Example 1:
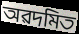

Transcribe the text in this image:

অৱদমিত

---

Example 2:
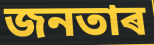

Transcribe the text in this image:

জনতাৰ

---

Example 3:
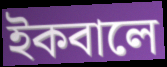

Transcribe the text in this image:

ইকবালে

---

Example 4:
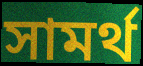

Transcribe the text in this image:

সামৰ্থ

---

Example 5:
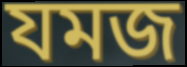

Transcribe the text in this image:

যমজ